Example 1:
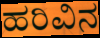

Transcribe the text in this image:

ಹರಿವಿನ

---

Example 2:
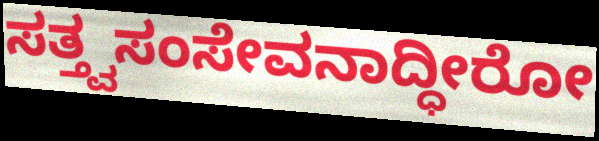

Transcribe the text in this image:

ಸತ್ತ್ವಸಂಸೇವನಾದ್ಧೀರೋ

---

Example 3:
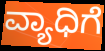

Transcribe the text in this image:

ವ್ಯಾಧಿಗೆ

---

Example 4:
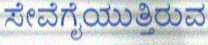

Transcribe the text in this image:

ಸೇವೆಗೈಯುತ್ತಿರುವ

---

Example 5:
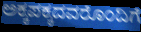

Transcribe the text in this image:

ಅಕ್ಕಪಕ್ಕದವರೊಂದಿಗೆ